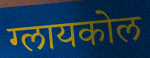
ग्लायकोल